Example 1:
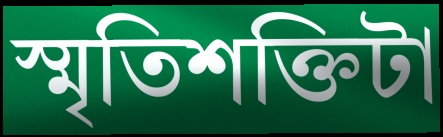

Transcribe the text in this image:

স্মৃতিশক্তিটা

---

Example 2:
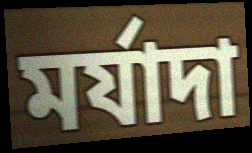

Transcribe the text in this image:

মর্যাদা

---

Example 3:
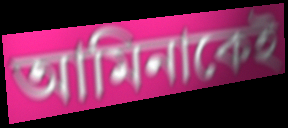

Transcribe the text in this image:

আমিনাকেই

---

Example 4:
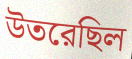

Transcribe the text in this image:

উতরেছিল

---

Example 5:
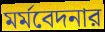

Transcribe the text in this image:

মর্মবেদনার